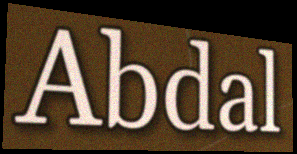
Abdal